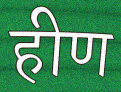
हीण